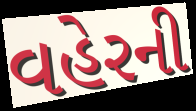
વહેરની